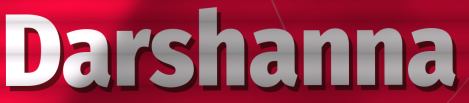
Darshanna